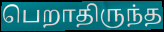
பெறாதிருந்த